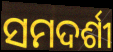
ସମଦର୍ଶୀ